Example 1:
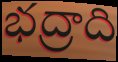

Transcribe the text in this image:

భద్రాది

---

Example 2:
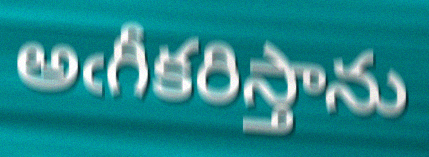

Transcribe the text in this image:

అఁగీకరిస్తాను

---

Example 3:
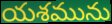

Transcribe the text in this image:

యశమును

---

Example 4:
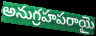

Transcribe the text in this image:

అనుగ్రహపరాయై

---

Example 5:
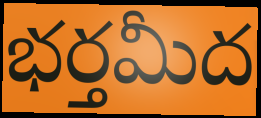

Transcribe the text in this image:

భర్తమీద